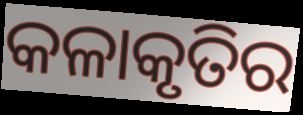
କଳାକୃତିର